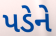
પડેને